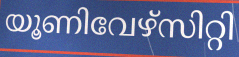
യൂണിവേഴ്സിറ്റി